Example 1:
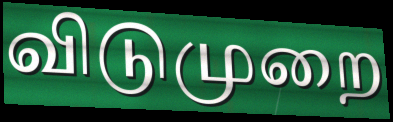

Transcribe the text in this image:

விடுமுறை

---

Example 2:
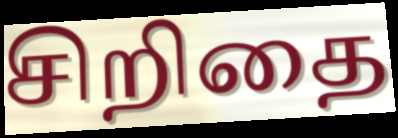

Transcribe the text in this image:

சிறிதை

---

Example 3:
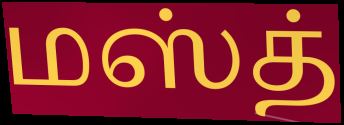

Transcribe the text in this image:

மஸ்த்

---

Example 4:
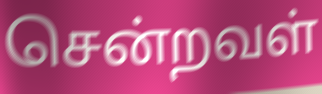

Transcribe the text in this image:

சென்றவள்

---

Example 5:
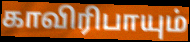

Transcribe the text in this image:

காவிரிபாயும்